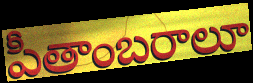
పీతాంబరాలూ